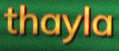
thayla